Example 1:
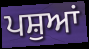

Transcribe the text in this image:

ਪਸ਼ੁਆਂ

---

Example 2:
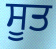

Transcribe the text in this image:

ਸੂਤ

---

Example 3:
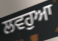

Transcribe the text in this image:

ਲਵਹੁਆ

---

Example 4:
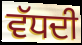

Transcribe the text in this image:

ਵੱਧਦੀ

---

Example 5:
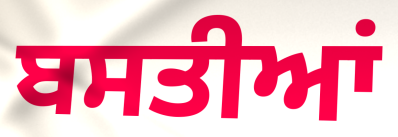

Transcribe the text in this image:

ਬਸਤੀਆਂ